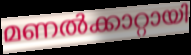
മണൽക്കാറ്റായി